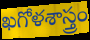
ఖగోళశాస్త్రం